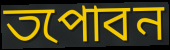
তপোবন